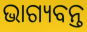
ଭାଗ୍ୟବନ୍ତ